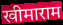
खीमाराम